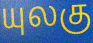
யுலகு